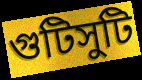
গুটিসুটি